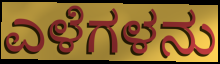
ಎಳೆಗಳನು